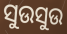
ସୁଉସୁଉ